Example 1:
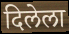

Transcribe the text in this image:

दिलेला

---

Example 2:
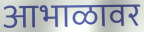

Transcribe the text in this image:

आभाळावर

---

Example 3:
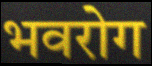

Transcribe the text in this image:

भवरोग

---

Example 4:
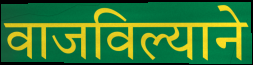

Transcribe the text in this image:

वाजविल्याने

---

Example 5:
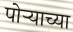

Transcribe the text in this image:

पोऱ्याच्या